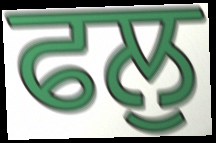
ਫਲੁ